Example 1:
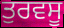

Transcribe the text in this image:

ਤੁਰਵਸੂ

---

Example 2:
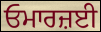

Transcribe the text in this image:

ਓਮਾਰਜ਼ਈ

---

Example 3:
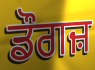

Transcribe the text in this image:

ਡੌਗਜ਼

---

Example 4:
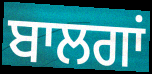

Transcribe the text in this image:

ਬਾਲਗਾਂ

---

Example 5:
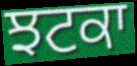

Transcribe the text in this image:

ਝਟਕਾ